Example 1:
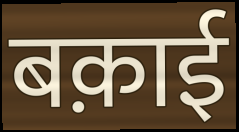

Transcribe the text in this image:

बक़ाई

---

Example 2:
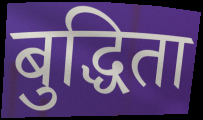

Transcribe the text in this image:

बुद्धिता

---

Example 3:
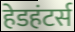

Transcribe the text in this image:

हेडहंटर्स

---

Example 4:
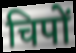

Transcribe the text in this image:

चिपों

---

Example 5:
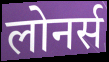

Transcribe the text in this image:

लोनर्स